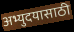
अभ्युदयासाठी